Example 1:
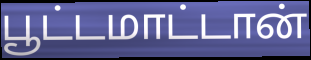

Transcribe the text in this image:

பூட்டமாட்டான்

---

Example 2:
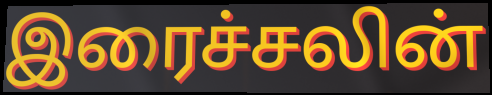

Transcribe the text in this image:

இரைச்சலின்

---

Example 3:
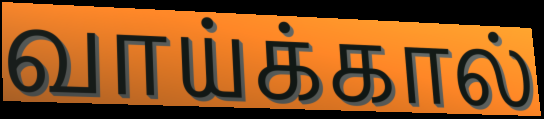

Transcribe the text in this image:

வாய்க்கால்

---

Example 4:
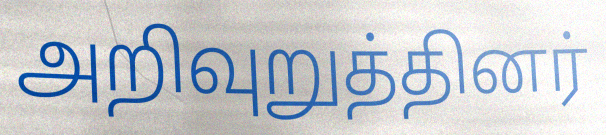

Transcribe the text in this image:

அறிவுறுத்தினர்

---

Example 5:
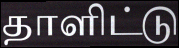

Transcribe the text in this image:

தாளிட்டு